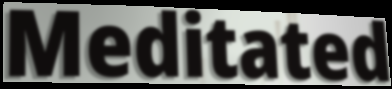
Meditated